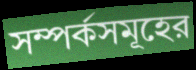
সম্পর্কসমূহের